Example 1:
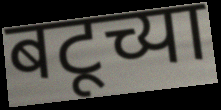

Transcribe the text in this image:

बटूच्या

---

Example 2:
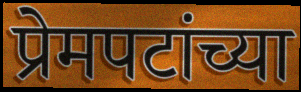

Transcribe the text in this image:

प्रेमपटांच्या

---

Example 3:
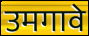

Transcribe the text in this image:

उमगावे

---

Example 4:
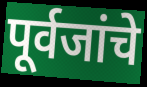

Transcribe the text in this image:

पूर्वजांचे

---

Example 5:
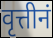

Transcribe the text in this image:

वृत्तीनं